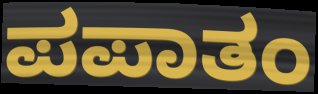
ಪಪಾತಂ